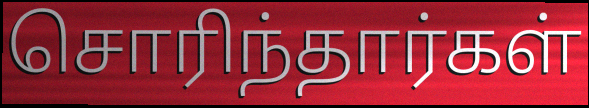
சொரிந்தார்கள்